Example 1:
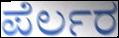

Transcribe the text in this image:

ಪೆರ್ಲರ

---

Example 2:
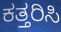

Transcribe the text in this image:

ಕತ್ತರಿಸಿ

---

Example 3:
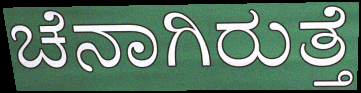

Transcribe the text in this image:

ಚೆನಾಗಿರುತ್ತೆ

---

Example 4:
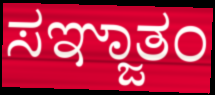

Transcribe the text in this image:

ಸಞ್ಜಾತಂ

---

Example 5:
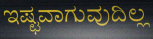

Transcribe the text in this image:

ಇಷ್ಟವಾಗುವುದಿಲ್ಲ